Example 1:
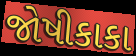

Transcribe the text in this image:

જોષીકાકા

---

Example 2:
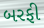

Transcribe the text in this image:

બરફી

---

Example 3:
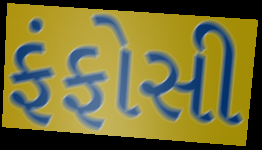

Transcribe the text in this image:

ફંફોસી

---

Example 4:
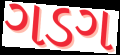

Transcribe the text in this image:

ગડગ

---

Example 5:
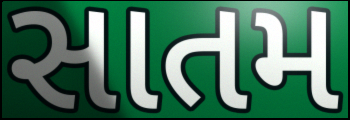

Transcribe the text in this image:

સાતમ